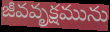
జీవవృక్షమును